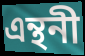
এন্থনী